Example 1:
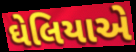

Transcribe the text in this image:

ઘેલિયાએ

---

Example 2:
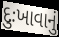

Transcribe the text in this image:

દુઃખાવાનું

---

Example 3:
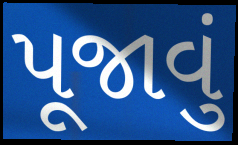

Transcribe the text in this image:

પૂજાવું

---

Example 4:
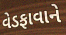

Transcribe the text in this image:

વેડફાવાને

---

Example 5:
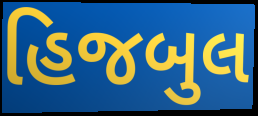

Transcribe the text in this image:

હિજબુલ